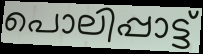
പൊലിപ്പാട്ട്